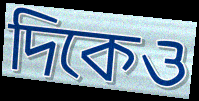
দিকেও